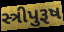
સ્ત્રીપુરૂષ